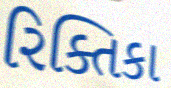
રિક્તિકા